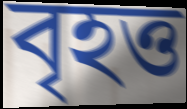
বৃহত্ত